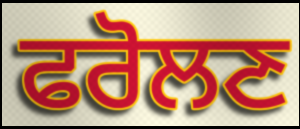
ਫਰੋਲਣ